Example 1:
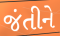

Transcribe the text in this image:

જંતીને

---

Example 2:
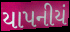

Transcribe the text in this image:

યાપનીયં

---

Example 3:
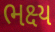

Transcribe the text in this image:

ભક્ષ્ય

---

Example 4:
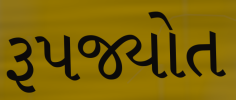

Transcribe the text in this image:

રૂપજ્યોત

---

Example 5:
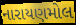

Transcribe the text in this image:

નારાયણમોલ